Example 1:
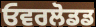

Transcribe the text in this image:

ਓਵਰਲੋਡਡ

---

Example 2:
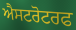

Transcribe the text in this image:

ਐਸਟਰੋਟਰਫ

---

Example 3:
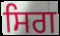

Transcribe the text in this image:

ਸਿਗ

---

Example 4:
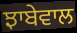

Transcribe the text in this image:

ਝਾਬੇਵਾਲ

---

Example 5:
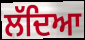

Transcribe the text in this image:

ਲੱਦਿਆ